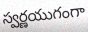
స్వర్ణయుగంగా